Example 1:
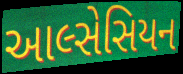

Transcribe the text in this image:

આલ્સેસિયન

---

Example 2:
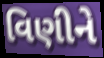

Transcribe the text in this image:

વિણીને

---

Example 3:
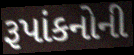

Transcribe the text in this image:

રૂપાંકનોની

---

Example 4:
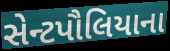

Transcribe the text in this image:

સેન્ટપૌલિયાના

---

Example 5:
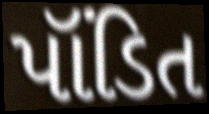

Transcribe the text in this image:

પૉંડિત